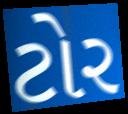
ટોર